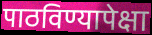
पाठविण्यापेक्षा